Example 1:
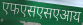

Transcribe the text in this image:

एफएसएसएआय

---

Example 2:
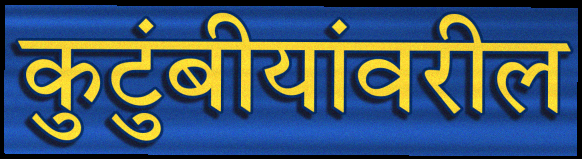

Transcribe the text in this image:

कुटुंबीयांवरील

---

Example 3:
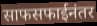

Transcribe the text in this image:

साफसफाईनंतर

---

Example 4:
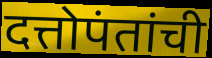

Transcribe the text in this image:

दत्तोपंतांची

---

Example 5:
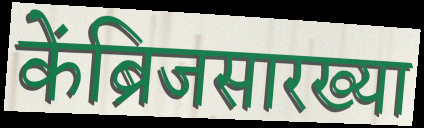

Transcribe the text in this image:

केंब्रिजसारख्या